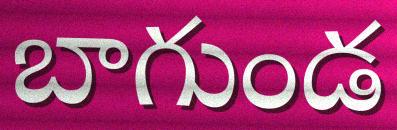
బాగుండ